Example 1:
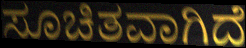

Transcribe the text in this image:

ಸೂಚಿತವಾಗಿದೆ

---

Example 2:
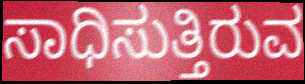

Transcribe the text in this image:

ಸಾಧಿಸುತ್ತಿರುವ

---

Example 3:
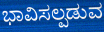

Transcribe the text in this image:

ಭಾವಿಸಲ್ಪಡುವ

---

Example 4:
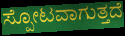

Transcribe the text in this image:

ಸ್ಪೋಟವಾಗುತ್ತದೆ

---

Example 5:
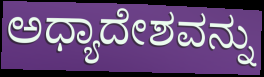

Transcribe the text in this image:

ಅಧ್ಯಾದೇಶವನ್ನು